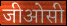
जीओसी